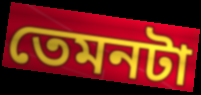
তেমনটা